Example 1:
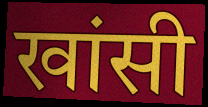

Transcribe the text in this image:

खांसी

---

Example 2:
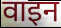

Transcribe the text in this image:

वाइन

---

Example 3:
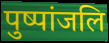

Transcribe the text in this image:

पुष्‍पांजलि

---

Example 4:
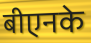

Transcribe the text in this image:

बीएनके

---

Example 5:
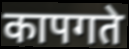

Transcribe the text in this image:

कापगते